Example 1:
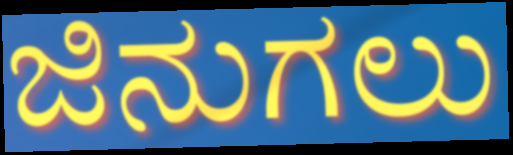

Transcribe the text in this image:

ಜಿನುಗಲು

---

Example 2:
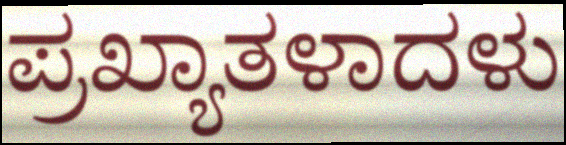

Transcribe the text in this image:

ಪ್ರಖ್ಯಾತಳಾದಳು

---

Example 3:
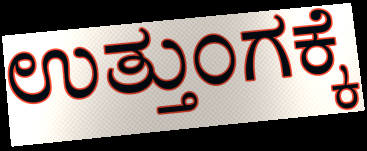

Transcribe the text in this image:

ಉತ್ತುಂಗಕ್ಕೆ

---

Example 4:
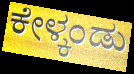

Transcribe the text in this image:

ಕೇಳ್ಕಂಡು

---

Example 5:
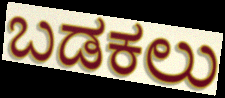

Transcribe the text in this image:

ಬಡಕಲು